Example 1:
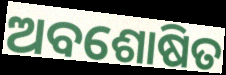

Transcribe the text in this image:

ଅବଶୋଷିତ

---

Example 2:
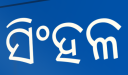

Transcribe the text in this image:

ସିଂହଳ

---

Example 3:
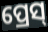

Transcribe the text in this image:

ପ୍ରେସ୍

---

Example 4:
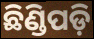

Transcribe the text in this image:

ଛିଣ୍ଡିପଡ଼ି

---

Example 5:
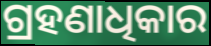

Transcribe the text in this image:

ଗ୍ରହଣାଧିକାର